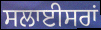
ਸਲਾਈਸਰਾਂ